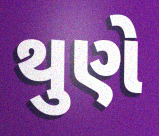
થુણે